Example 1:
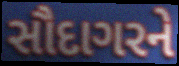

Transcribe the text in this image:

સૌદાગરને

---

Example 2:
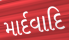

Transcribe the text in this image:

માર્દવાદિ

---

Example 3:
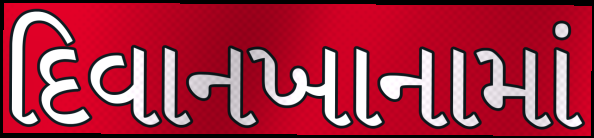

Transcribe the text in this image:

દિવાનખાનામાં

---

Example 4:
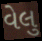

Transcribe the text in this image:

વેલુ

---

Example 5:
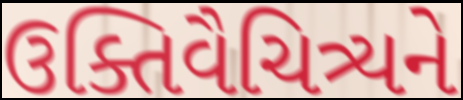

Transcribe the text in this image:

ઉક્તિવૈચિત્ર્યને